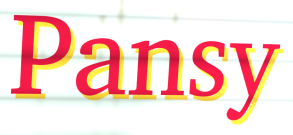
Pansy